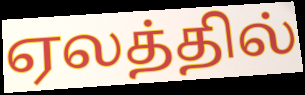
ஏலத்தில்